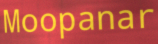
Moopanar